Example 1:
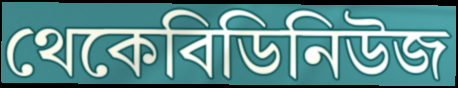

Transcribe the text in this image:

থেকেবিডিনিউজ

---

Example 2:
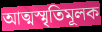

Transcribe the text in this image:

আত্মস্মৃতিমূলক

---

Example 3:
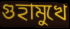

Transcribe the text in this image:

গুহামুখে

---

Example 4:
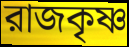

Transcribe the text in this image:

রাজকৃষ্ণ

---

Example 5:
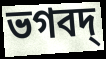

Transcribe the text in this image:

ভগবদ্